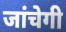
जांचेगी